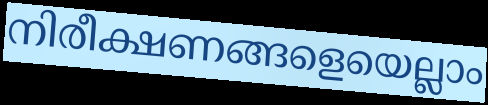
നിരീക്ഷണങ്ങളെയെല്ലാം